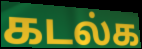
கடல்க